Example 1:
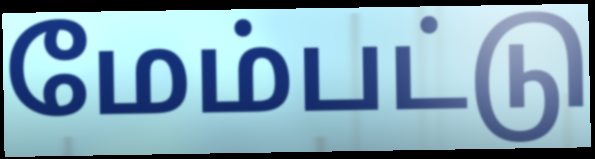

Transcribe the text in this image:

மேம்பட்டு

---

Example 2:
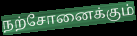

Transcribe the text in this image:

நற்சோனைக்கும்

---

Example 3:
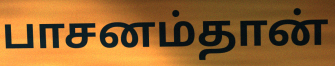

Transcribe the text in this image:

பாசனம்தான்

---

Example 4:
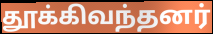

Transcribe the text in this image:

தூக்கிவந்தனர்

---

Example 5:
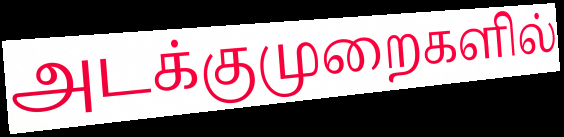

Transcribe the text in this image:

அடக்குமுறைகளில்